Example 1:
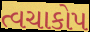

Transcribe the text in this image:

ત્વચાકોપ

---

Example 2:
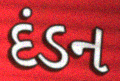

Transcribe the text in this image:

દંડન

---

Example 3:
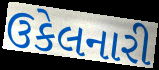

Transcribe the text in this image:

ઉકેલનારી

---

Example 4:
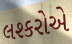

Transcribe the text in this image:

લશ્કરોએ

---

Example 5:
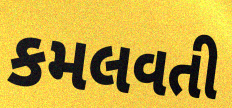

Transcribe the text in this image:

કમલવતી